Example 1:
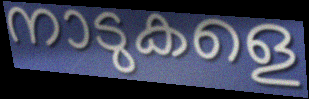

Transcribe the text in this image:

നാടുകളെ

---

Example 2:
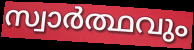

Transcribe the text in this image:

സ്വാർത്ഥവും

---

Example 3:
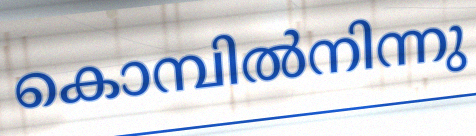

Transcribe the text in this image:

കൊമ്പിൽനിന്നു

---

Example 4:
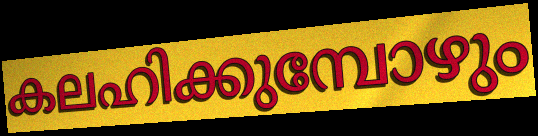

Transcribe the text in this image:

കലഹിക്കുമ്പോഴും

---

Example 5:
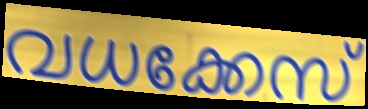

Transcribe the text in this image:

വധക്കേസ്